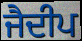
ਜੈਦੀਪ